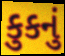
કુકનું